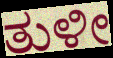
ತುಳೀ